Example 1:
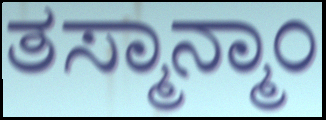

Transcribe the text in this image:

ತಸ್ಮಾನ್ಮಾಂ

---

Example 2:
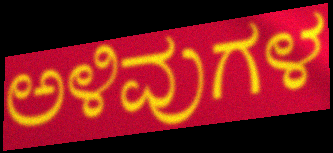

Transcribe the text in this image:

ಅಳಿವುಗಳ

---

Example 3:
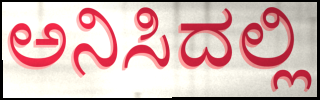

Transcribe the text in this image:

ಅನಿಸಿದಲ್ಲಿ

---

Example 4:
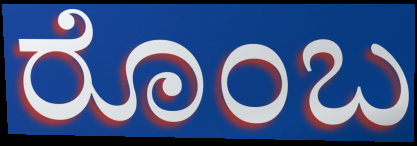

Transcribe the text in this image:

ರೊಂಬ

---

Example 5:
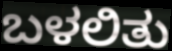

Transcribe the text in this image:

ಬಳಲಿತು